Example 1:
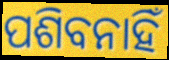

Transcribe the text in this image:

ପଶିବନାହିଁ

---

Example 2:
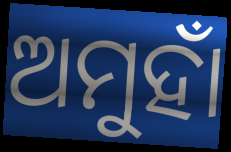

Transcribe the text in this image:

ଅମୁହାଁ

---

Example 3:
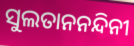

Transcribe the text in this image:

ସୁଲତାନନନ୍ଦିନୀ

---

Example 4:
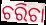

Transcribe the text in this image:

ଚରିଚା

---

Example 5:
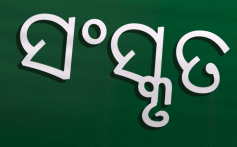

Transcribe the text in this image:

ସଂସ୍କୃତ